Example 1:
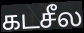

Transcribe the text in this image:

கடசீல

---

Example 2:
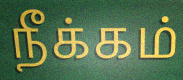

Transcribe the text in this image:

நீக்கம்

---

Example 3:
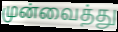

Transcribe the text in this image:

முன்வைத்து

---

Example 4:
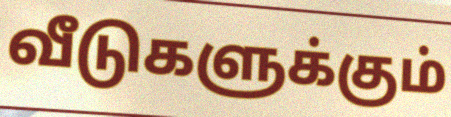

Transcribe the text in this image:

வீடுகளுக்கும்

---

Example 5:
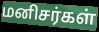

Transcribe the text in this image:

மனிசர்கள்